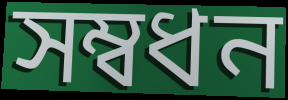
সম্বধন